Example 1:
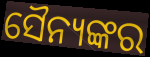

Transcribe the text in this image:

ସୈନ୍ୟଙ୍କର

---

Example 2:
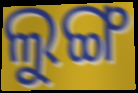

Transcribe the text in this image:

ଲୁଙ୍ଗ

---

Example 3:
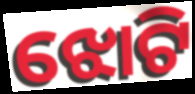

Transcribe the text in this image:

ଝୋଟି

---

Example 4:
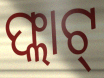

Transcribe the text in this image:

ଫ୍ଲାଟ୍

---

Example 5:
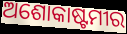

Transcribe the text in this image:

ଅଶୋକାଷ୍ଟମୀର